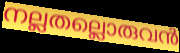
നല്ലതല്ലൊരുവൻ